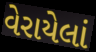
વેરાયેલાં